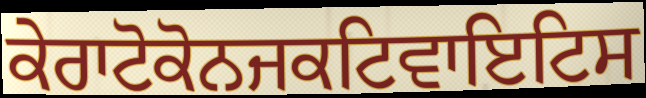
ਕੇਰਾਟੋਕੋਨਜਕਟਿਵਾਇਟਿਸ